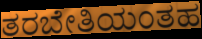
ತರಬೇತಿಯಂತಹ